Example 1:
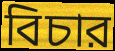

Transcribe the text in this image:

বিচার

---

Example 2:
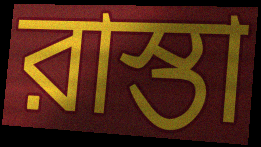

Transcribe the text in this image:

রাস্তা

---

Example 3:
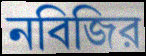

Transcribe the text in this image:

নবিজির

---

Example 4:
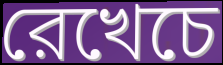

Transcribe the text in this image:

রেখেচে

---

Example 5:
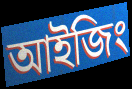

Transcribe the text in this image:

আইজিং